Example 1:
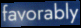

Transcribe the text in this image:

favorably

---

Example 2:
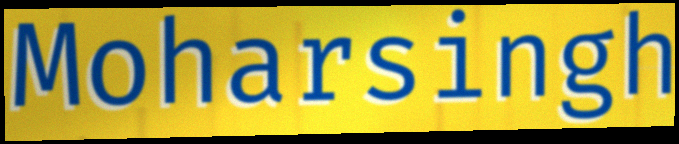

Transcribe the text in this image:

Moharsingh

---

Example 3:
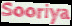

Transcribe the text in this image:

Sooriya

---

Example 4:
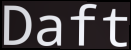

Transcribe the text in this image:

Daft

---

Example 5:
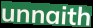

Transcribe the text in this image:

unnaith